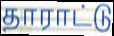
தாராட்டு